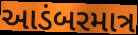
આડંબરમાત્ર